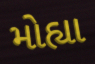
મોહ્યા